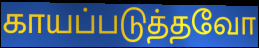
காயப்படுத்தவோ